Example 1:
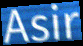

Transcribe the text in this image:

Asir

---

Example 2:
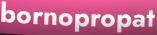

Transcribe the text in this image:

bornopropat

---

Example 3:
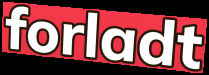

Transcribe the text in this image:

forladt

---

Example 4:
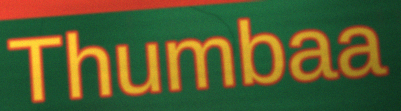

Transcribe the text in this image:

Thumbaa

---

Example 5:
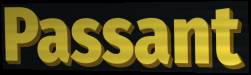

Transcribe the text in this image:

Passant